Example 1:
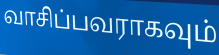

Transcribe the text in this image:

வாசிப்பவராகவும்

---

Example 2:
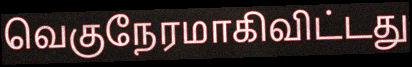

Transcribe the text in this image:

வெகுநேரமாகிவிட்டது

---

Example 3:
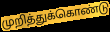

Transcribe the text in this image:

முறித்துக்கொண்டு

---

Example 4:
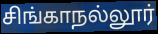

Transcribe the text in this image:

சிங்காநல்லூர்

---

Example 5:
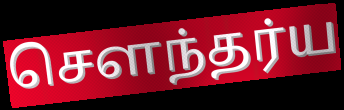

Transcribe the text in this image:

செளந்தர்ய